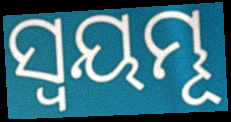
ସ୍ଵୟମ୍ଭୂ